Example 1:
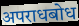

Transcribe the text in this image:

अपराधबोध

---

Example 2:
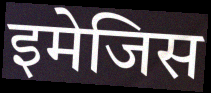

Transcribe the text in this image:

इमेजिस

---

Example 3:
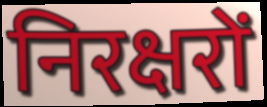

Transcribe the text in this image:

निरक्षरों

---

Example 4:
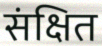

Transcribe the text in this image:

संक्षित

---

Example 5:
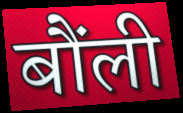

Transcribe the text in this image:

बौंली